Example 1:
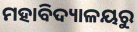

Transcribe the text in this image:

ମହାବିଦ୍ୟାଳୟରୁ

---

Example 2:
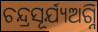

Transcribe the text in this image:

ଚନ୍ଦ୍ରସୂର୍ଯ୍ୟଅଗ୍ନି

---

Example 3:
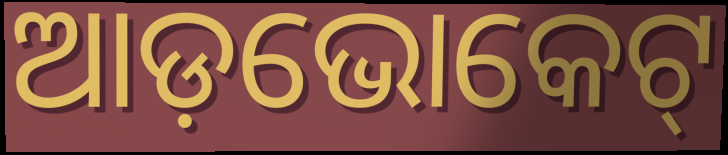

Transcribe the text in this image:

ଆଡ଼ଭୋକେଟ୍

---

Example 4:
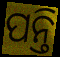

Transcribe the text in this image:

ପନ୍ତି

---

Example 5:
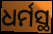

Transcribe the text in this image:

ଧର୍ମସ୍ଥ